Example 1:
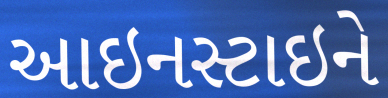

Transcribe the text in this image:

આઇનસ્ટાઇને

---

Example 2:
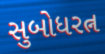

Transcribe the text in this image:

સુબોધરત્ન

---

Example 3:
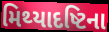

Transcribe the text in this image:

મિથ્યાદષ્ટિના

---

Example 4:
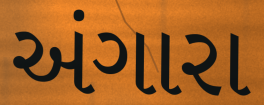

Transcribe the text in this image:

અંગારા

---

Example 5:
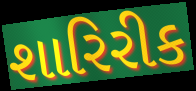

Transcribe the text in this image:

શારિરીક